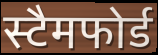
स्टैमफोर्ड